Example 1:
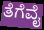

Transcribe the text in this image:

ತೆಗೆವೈ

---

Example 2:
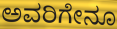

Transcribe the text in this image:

ಅವರಿಗೇನೂ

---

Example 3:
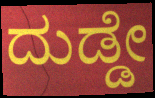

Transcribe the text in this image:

ದುಡ್ಡೇ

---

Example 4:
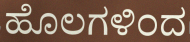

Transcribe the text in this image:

ಹೊಲಗಳಿಂದ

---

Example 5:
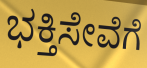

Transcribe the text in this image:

ಭಕ್ತಿಸೇವೆಗೆ